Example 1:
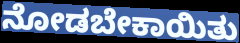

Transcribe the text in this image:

ನೋಡಬೇಕಾಯಿತು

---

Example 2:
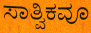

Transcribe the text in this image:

ಸಾತ್ವಿಕವೂ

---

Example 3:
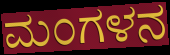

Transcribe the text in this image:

ಮಂಗಳನ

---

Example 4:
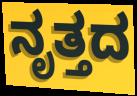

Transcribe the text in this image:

ನೃತ್ತದ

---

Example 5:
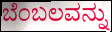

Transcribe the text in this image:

ಬೆಂಬಲವನ್ನು